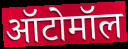
ऑटोमॉल